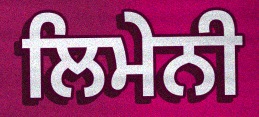
ਲਿਮੇਨੀ